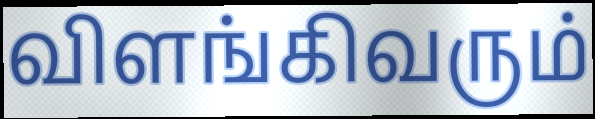
விளங்கிவரும்